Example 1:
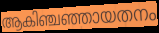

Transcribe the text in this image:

ആകിഞ്ചഞ്ഞായതനം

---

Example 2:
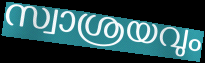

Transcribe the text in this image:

സ്വാശ്രയവും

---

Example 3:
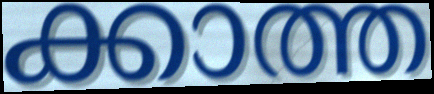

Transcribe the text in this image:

ക്കാത്ത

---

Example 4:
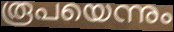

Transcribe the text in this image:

രൂപയെന്നും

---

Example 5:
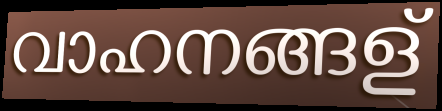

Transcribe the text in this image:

വാഹനങ്ങള്